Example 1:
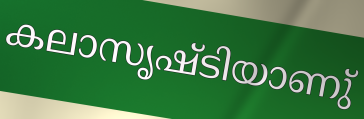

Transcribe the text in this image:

കലാസൃഷ്ടിയാണു്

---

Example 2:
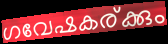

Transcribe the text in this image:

ഗവേഷകര്ക്കും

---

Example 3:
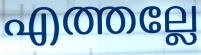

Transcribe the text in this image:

എത്തല്ലേ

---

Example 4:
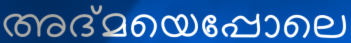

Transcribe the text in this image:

അദ്മയെപ്പോലെ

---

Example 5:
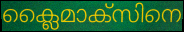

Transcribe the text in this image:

ക്ലൈമാക്സിനെ